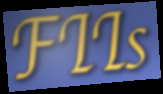
FIIs